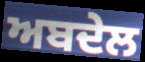
ਅਬਦੇਲ